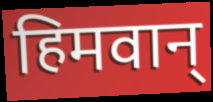
हिमवान्